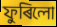
ফুৰিলো